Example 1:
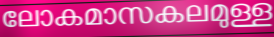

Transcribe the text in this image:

ലോകമാസകലമുള്ള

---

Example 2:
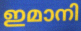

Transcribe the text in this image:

ഇമാനി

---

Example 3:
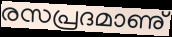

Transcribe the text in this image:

രസപ്രദമാണു്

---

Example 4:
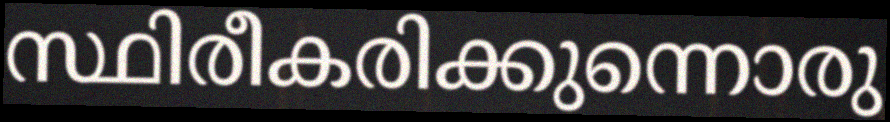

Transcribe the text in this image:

സ്ഥിരീകരിക്കുന്നൊരു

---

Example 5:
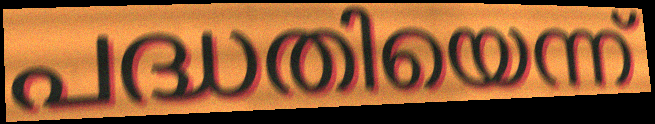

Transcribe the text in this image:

പദ്ധതിയെന്ന്